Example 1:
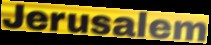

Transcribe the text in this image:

Jerusalem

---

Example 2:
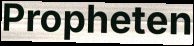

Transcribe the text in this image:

Propheten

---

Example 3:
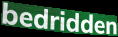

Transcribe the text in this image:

bedridden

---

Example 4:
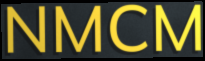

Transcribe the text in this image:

NMCM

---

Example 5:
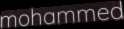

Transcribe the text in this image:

mohammed